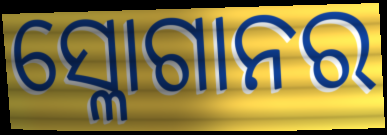
ସ୍ଳୋଗାନର